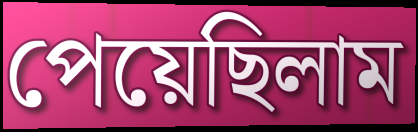
পেয়েছিলাম